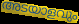
അടയാളവും